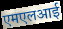
एमएलआई